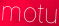
motu